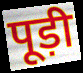
पूड़ी